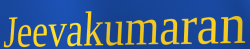
Jeevakumaran